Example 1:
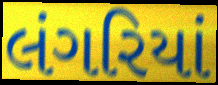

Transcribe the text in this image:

લંગરિયાં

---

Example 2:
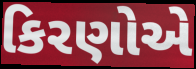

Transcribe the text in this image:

કિરણોએ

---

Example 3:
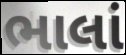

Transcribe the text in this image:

ભાલાં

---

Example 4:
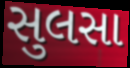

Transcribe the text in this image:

સુલસા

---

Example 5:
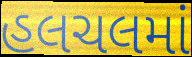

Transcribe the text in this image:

હલચલમાં